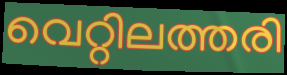
വെറ്റിലത്തരി